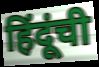
हिंदूंची